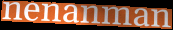
nenanman